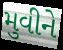
મુવીને